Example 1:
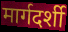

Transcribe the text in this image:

मार्गदर्शी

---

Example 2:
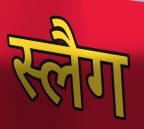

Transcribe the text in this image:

स्लैग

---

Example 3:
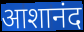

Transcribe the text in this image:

आशानंद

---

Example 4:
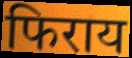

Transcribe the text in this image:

फिराय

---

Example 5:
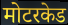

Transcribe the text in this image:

मोटरकेड